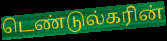
டெண்டுல்கரின்